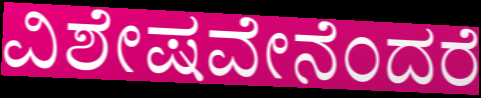
ವಿಶೇಷವೇನೆಂದರೆ